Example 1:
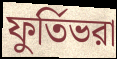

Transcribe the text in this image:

ফুর্তিভরা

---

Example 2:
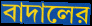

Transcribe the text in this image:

বাদালের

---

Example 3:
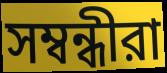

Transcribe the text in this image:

সম্বন্ধীরা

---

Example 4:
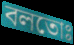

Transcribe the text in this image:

বলতোঃ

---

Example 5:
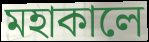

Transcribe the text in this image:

মহাকালে